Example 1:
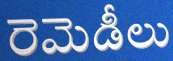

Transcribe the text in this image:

రెమెడీలు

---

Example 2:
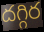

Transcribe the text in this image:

దగ్గిర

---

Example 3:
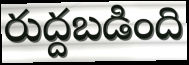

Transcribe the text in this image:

రుద్దబడింది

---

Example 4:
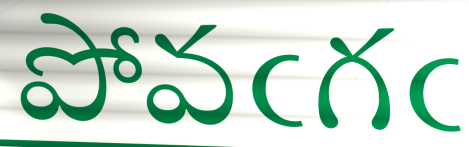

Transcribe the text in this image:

పోవఁగఁ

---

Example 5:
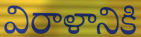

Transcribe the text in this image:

విరాళానికి